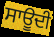
ਸਾਊਦੀ